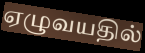
ஏழுவயதில்